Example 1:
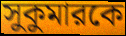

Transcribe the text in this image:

সুকুমারকে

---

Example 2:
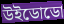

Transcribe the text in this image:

উইডোডো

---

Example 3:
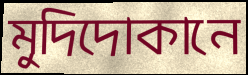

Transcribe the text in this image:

মুদিদোকানে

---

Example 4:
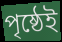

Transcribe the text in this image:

পৃষ্ঠেই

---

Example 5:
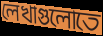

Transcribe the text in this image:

লেখাগুলোতে